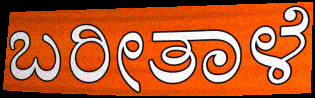
ಬರೀತಾಳೆ